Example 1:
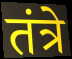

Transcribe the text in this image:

तंत्रे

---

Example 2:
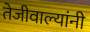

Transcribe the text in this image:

तेजीवाल्यांनी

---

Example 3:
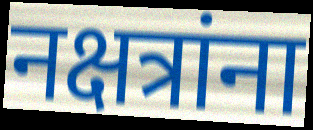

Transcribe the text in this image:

नक्षत्रांना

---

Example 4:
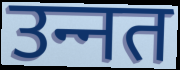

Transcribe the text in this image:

उन्‍नत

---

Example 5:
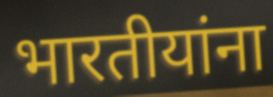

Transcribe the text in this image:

भारतीयांना